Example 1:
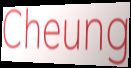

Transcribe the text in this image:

Cheung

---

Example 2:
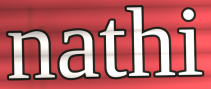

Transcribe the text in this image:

nathi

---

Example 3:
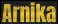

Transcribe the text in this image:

Arnika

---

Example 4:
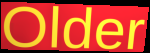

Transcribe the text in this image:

Older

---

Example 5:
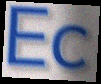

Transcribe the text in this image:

Ec